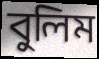
বুলিম